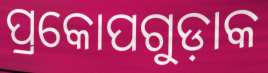
ପ୍ରକୋପଗୁଡ଼ାକ